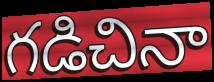
గడిచినా